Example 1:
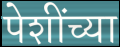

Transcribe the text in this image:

पेशींच्या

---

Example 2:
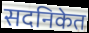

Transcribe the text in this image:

सदनिकेत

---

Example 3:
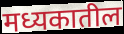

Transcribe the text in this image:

मध्यकातील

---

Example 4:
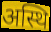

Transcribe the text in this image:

अस्थि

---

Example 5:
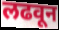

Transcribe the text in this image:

लढवून